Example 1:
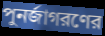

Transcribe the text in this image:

পুনর্জাগরণের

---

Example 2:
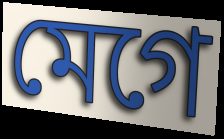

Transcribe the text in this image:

মেগে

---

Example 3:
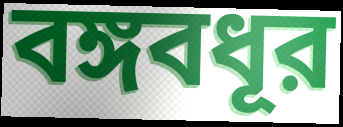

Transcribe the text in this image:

বঙ্গবধূর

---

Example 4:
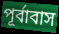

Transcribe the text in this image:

পূর্বাবাস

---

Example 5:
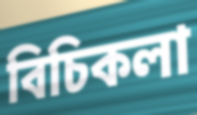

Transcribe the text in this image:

বিচিকলা